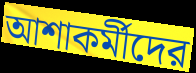
আশাকর্মীদের